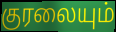
குரலையும்